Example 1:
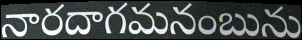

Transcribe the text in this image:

నారదాగమనంబును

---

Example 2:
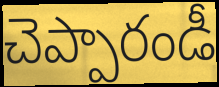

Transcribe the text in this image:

చెప్పారండీ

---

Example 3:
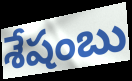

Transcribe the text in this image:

శేషంబు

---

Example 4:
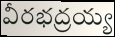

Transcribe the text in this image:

వీరభద్రయ్య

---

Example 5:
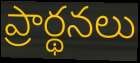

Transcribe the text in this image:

ప్రార్థనలు